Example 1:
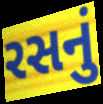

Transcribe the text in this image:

રસનું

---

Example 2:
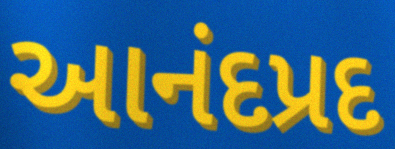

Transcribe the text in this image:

આનંદપ્રદ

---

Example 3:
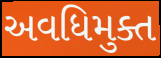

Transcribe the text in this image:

અવધિમુક્ત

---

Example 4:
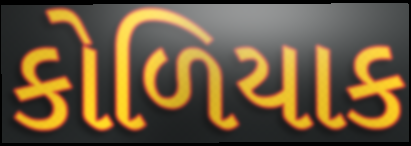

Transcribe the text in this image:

કોળિયાક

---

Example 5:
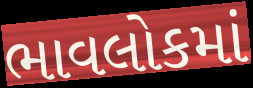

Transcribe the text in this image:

ભાવલોકમાં